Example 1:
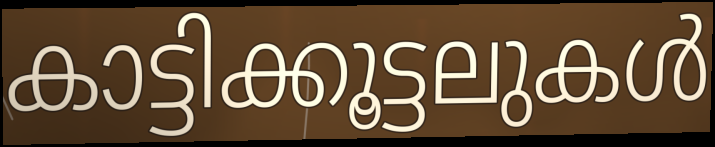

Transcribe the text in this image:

കാട്ടിക്കൂട്ടലുകൾ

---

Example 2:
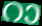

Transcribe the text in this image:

റാ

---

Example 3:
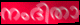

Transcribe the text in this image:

നംദിതാ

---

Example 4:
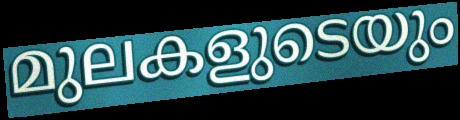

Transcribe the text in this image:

മുലകളുടെയും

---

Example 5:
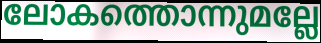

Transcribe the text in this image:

ലോകത്തൊന്നുമല്ലേ